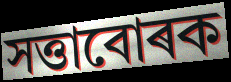
সত্তাবোৰক